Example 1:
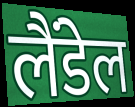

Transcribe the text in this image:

लैंडेल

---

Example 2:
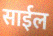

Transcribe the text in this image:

साईल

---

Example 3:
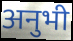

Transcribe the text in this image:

अनुभी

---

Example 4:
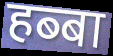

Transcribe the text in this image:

हब्‍बा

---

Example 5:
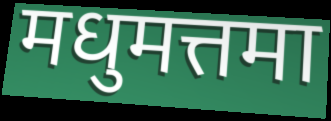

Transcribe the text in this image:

मधुमत्तमा